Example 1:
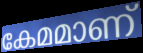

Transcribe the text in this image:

കേമമാണ്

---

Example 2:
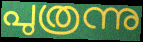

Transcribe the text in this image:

പുത്രന്നു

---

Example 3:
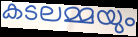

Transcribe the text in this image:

കടലമ്മയും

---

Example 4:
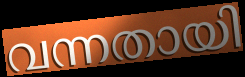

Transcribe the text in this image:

വന്നതായി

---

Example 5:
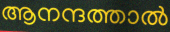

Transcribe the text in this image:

ആനന്ദത്താൽ